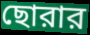
ছোরার